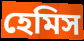
হেমিস